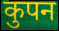
कुपन